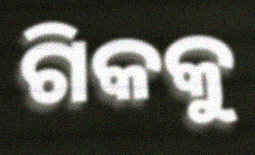
ଗିକକୁ